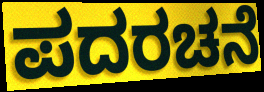
ಪದರಚನೆ